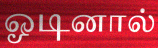
ஓடினால்